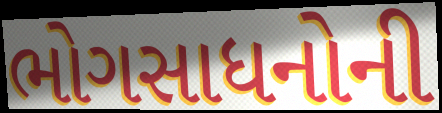
ભોગસાધનોની